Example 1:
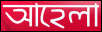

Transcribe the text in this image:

আহেলা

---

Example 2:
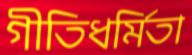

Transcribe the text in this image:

গীতিধর্মিতা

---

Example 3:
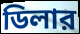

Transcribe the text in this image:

ডিলার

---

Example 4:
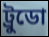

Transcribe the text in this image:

ট্রুডো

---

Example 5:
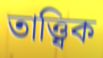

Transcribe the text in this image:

তাত্ত্বিক